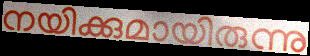
നയിക്കുമായിരുന്നു